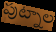
పుట్నాల